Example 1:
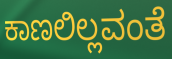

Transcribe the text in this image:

ಕಾಣಲಿಲ್ಲವಂತೆ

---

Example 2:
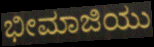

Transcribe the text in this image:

ಭೀಮಾಜಿಯು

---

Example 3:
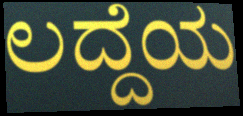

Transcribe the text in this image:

ಲದ್ದೆಯ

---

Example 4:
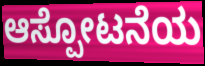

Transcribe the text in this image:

ಆಸ್ಪೋಟನೆಯ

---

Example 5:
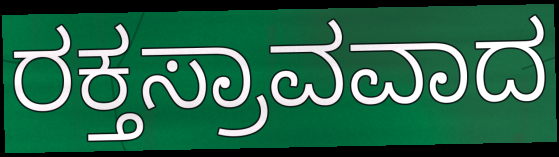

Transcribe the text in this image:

ರಕ್ತಸ್ರಾವವಾದ